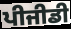
ਪੀਜੀਡੀ